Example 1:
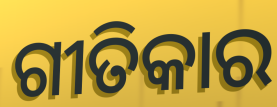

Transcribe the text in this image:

ଗୀତିକାର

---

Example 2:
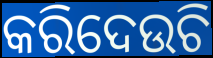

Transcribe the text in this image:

କରିଦେଉଚି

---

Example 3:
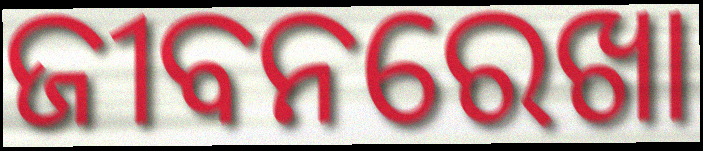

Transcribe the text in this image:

ଜୀବନରେଖା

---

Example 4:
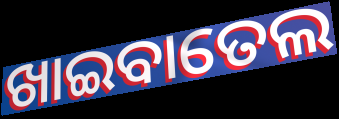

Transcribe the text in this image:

ଖାଇବାତେଲ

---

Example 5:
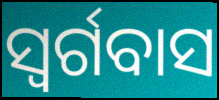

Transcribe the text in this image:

ସ୍ଵର୍ଗବାସ